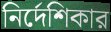
নির্দেশিকার